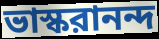
ভাস্করানন্দ